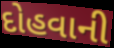
દોહવાની